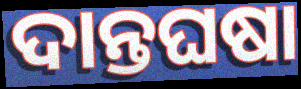
ଦାନ୍ତଘଷା